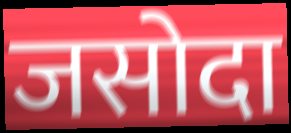
जसोदा